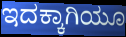
ಇದಕ್ಕಾಗಿಯೂ